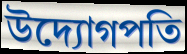
উদ্যোগপতি